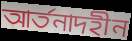
আর্তনাদহীন